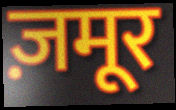
ज़मूर